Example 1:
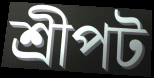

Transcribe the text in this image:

শ্রীপট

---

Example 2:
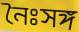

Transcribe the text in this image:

নৈঃসঙ্গ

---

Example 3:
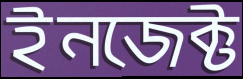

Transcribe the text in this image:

ইনজেক্ট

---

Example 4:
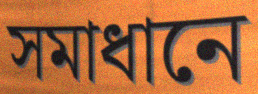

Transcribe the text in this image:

সমাধানে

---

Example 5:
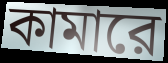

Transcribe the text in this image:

কামারে